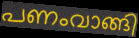
പണംവാങ്ങി